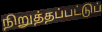
நிறுத்தப்பட்டுப்